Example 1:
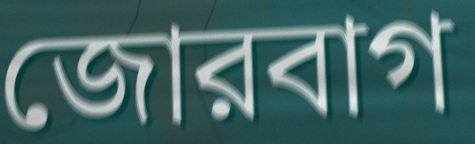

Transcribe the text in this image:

জোরবাগ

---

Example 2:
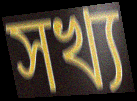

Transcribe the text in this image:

সখ্য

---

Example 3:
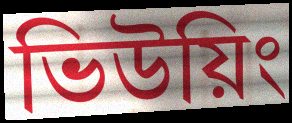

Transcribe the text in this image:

ভিউয়িং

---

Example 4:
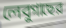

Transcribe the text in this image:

লেবুগাছের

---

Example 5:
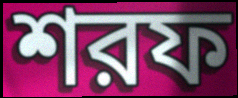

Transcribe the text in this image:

শরফ